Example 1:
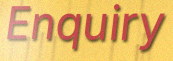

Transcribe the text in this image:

Enquiry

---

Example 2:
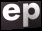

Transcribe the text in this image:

ep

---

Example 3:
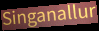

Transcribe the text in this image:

Singanallur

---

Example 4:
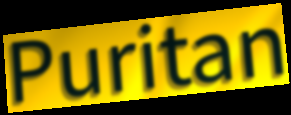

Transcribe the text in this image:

Puritan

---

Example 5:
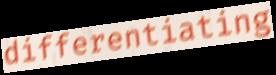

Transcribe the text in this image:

differentiating